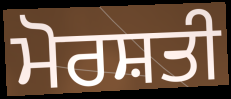
ਮੋਰਸ਼ਤੀ